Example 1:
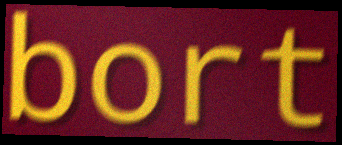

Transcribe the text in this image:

bort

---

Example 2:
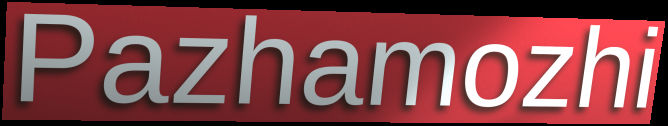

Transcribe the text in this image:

Pazhamozhi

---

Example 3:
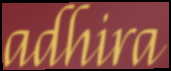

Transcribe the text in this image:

adhira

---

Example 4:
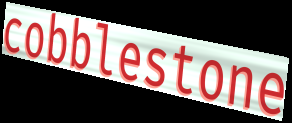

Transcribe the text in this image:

cobblestone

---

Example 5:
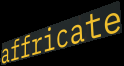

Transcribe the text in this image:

affricate